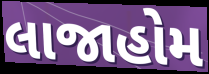
લાજાહોમ